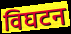
विघटन